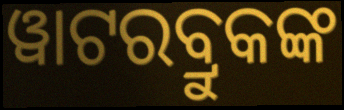
ୱାଟରବ୍ରୁକଙ୍କ